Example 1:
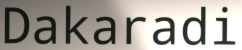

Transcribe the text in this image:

Dakaradi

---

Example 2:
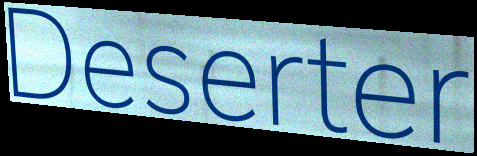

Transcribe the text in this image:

Deserter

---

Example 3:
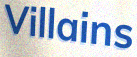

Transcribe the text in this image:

Villains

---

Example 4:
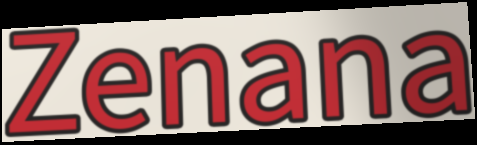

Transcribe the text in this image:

Zenana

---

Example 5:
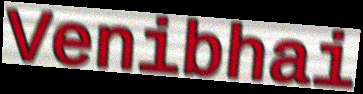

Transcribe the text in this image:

Venibhai